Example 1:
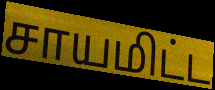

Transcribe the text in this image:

சாயமிட்ட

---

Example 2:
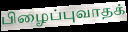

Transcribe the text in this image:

பிழைப்புவாதக்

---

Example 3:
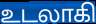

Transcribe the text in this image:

உடலாகி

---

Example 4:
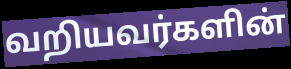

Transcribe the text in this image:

வறியவர்களின்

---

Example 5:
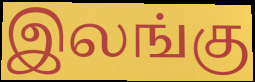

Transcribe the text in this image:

இலங்கு